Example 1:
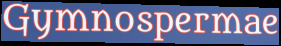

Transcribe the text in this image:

Gymnospermae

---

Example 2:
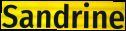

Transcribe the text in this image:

Sandrine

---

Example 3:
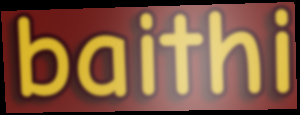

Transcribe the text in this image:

baithi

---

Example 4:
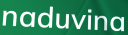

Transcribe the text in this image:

naduvina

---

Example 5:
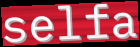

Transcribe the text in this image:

selfa